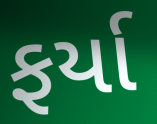
ફર્યા